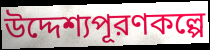
উদ্দেশ্যপূরণকল্পে